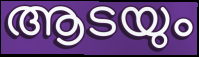
ആടയും